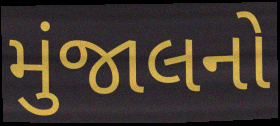
મુંજાલનો